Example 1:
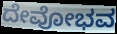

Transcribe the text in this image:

ದೇವೋಭವ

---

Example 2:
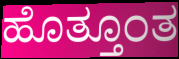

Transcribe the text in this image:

ಹೊತ್ತೂಂತ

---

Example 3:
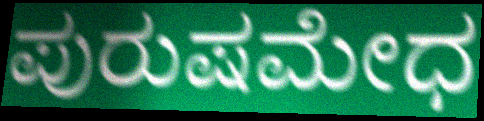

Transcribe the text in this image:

ಪುರುಷಮೇಧ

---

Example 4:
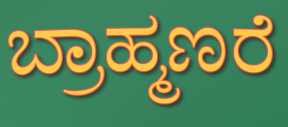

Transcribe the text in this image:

ಬ್ರಾಹ್ಮಣರೆ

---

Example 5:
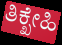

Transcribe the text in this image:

ತಿಕ್ಖೇಹಿ